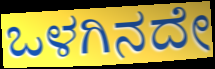
ಒಳಗಿನದೇ